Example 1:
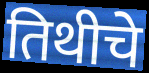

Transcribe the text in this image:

तिथीचे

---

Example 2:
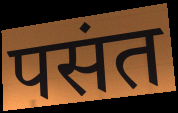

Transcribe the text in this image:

पसंत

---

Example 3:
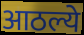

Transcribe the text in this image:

आठल्ये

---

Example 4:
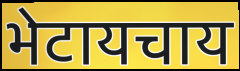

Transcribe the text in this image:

भेटायचाय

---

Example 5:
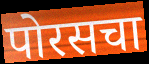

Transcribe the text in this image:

पोरसचा